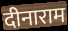
दीनाराम